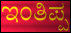
ಇಂತಿಪ್ಪ